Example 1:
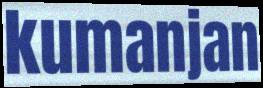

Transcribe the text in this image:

kumanjan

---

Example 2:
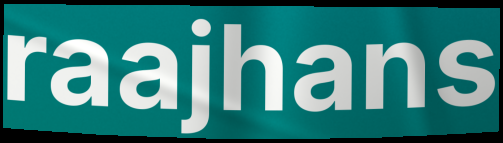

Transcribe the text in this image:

raajhans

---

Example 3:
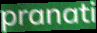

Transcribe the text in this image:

pranati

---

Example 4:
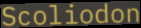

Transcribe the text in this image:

Scoliodon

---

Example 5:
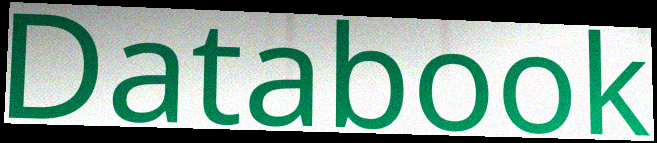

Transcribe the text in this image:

Databook